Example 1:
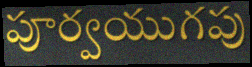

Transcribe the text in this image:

పూర్వయుగపు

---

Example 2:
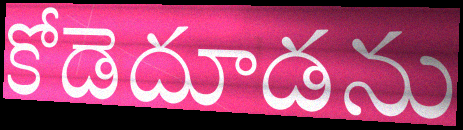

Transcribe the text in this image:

కోడెదూడను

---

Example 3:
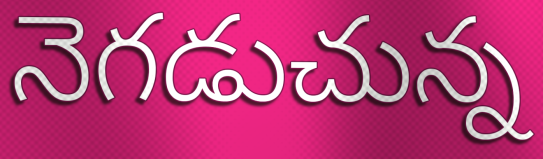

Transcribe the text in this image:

నెగడుచున్న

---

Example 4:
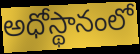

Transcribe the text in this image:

అధోస్థానంలో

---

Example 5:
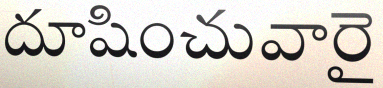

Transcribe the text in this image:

దూషించువారై